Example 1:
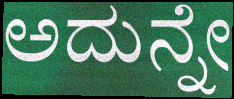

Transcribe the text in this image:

ಅದುನ್ನೇ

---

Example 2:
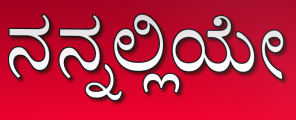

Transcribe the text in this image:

ನನ್ನಲ್ಲಿಯೇ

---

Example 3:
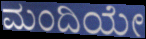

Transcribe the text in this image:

ಮಂದಿಯೇ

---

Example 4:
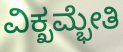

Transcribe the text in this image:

ವಿಕ್ಖಮ್ಭೇತಿ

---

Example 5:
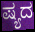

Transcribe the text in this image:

ಷ್ಯದ